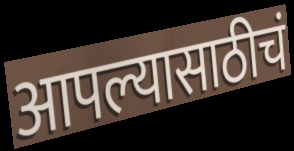
आपल्यासाठीचं